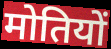
मोतियों